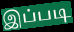
இப்படி